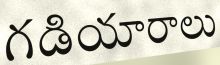
గడియారాలు